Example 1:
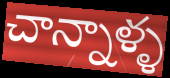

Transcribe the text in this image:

చాన్నాళ్ళ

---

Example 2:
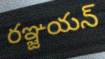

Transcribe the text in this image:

రఞ్జయన్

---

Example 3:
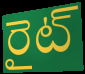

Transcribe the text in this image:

రైట్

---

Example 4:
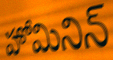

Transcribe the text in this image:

హోమినిన్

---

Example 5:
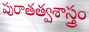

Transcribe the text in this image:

పురాతత్వశాస్త్రం